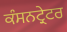
ਕੰਸਨਟ੍ਰੇਟਰ